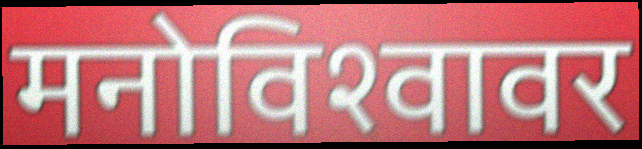
मनोविश्वावर